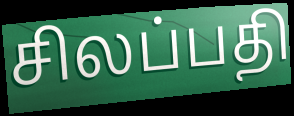
சிலப்பதி